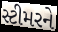
સ્ટીમરને